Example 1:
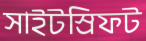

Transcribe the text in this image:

সাইটস্রিফট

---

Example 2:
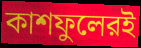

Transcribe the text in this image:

কাশফুলেরই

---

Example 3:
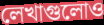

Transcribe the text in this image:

লেখাগুলোও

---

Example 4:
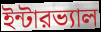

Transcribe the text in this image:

ইন্টারভ্যাল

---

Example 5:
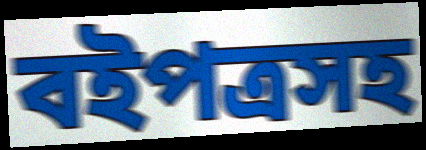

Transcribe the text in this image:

বইপত্রসহ